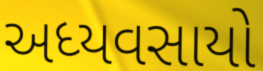
અધ્યવસાયો